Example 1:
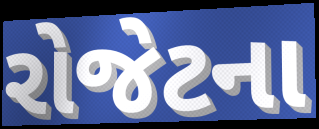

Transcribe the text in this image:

રોજેટના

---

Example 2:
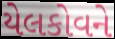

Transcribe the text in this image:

યેલકોવને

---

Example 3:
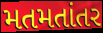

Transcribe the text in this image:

મતમતાંતર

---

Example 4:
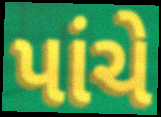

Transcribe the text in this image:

પાંચે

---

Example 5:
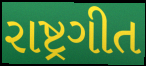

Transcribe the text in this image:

રાષ્ટ્રગીત